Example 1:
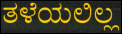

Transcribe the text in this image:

ತಳೆಯಲಿಲ್ಲ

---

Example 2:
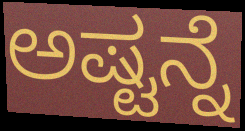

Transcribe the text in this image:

ಅಷ್ಟನ್ನೆ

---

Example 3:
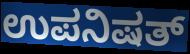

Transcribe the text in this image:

ಉಪನಿಷತ್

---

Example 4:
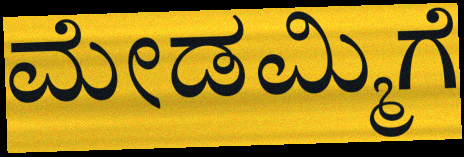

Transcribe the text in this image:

ಮೇಡಮ್ಮಿಗೆ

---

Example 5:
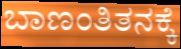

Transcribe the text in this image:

ಬಾಣಂತಿತನಕ್ಕೆ